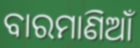
ବାରମାଣିଆଁ